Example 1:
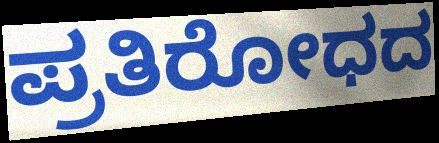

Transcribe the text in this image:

ಪ್ರತಿರೋಧದ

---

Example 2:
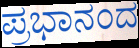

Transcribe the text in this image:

ಪ್ರಭಾನಂದ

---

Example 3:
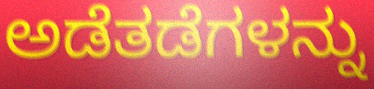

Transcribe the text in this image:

ಅಡೆತಡೆಗಳನ್ನು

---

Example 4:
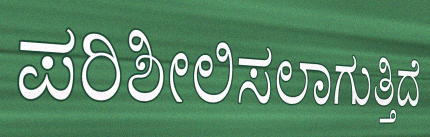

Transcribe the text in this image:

ಪರಿಶೀಲಿಸಲಾಗುತ್ತಿದೆ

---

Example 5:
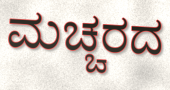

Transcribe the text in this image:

ಮಚ್ಚರದ